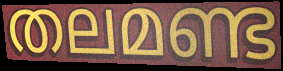
തലമണ്ട